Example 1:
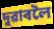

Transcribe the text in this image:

দুৱাৰলৈ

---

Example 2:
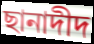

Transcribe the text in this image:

ছানাদীদ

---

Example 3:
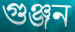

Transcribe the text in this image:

গুঞ্জন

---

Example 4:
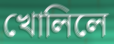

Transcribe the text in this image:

খোলিলে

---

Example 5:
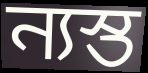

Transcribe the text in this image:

ন্যস্ত